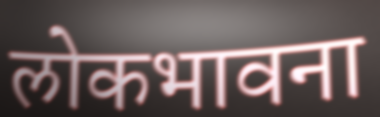
लोकभावना